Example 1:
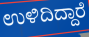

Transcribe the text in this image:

ಉಳಿದಿದ್ದಾರೆ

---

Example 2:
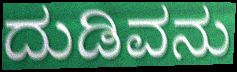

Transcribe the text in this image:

ದುಡಿವನು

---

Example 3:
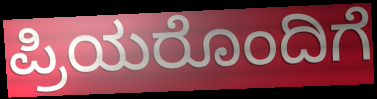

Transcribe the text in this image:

ಪ್ರಿಯರೊಂದಿಗೆ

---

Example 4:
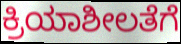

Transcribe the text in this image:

ಕ್ರಿಯಾಶೀಲತೆಗೆ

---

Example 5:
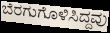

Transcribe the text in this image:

ಬೆರಗುಗೊಳಿಸಿದ್ದವು